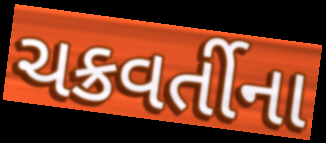
ચક્રવર્તીના